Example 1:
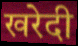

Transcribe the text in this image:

खरेदी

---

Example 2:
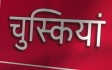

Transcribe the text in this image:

चुस्कियां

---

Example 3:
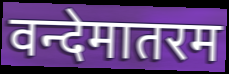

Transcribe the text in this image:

वन्देमातरम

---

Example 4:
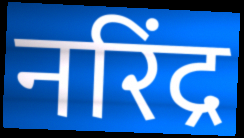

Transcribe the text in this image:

नरिंद्र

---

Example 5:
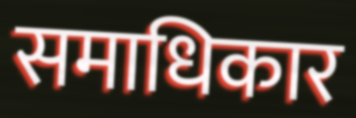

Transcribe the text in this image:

समाधिकार